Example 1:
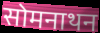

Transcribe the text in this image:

सोमनाथन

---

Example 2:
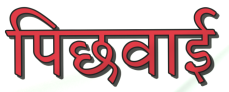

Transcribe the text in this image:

पिछवाई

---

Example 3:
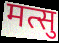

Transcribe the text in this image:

मत्सु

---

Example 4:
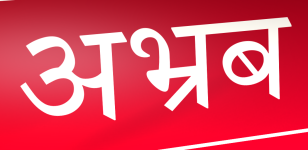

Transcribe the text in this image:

अभ्रब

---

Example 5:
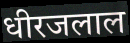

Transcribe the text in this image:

धीरजलाल